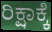
ರಿಕ್ಷಾಕ್ಕೆ